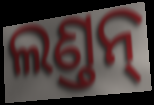
ଲଣ୍ତନ୍